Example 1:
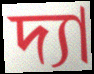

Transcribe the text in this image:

দ্যা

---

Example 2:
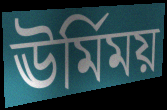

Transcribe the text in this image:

ঊর্মিময়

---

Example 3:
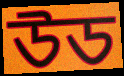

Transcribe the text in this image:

উড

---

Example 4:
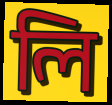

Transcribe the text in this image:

লি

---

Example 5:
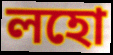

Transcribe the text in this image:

লহো